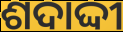
ଶଦାଦ୍ଦୀ